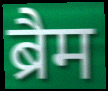
ब्रैम